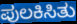
ಪುಲಕಿಸಿತು